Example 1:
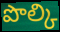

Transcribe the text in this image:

పొల్కి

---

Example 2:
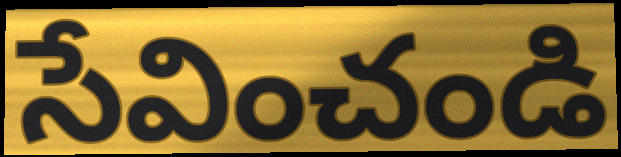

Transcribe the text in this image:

సేవించండి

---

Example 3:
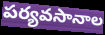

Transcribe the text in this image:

పర్యవసానాల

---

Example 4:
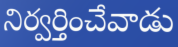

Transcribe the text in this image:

నిర్వర్తించేవాడు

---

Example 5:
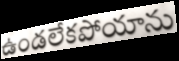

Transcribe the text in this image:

ఉండలేకపోయాను